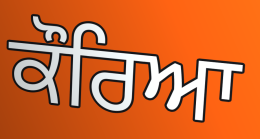
ਕੌਰਿਆ